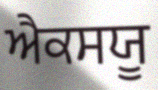
ਐਕਸਯੂ